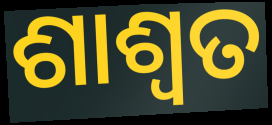
ଶାଶ୍ୱତ